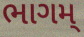
ભાગમ્